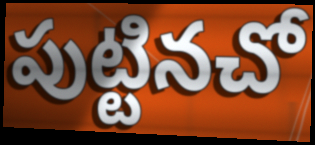
పుట్టినచో